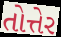
તોત્તેર